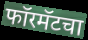
फॉरमॅटचा